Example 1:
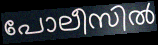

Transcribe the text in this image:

പോലീസിൽ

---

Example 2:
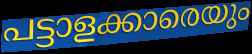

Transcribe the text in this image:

പട്ടാളക്കാരെയും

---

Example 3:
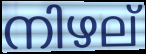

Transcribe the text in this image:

നിഴല്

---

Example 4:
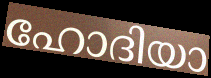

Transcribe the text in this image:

ഹോദിയാ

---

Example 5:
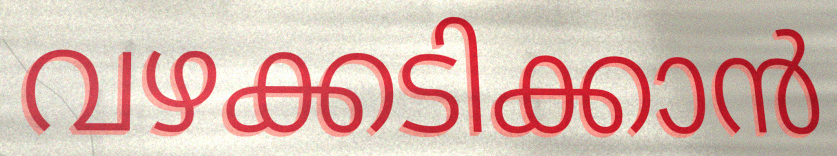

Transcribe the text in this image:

വഴക്കടിക്കാൻ